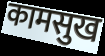
कामसुख